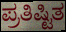
ಪ್ರತಿಷ್ಟಿತ